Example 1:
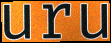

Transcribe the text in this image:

uru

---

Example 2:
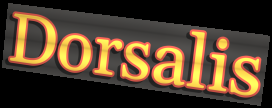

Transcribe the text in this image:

Dorsalis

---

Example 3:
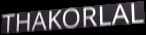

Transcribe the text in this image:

THAKORLAL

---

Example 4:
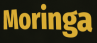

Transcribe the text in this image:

Moringa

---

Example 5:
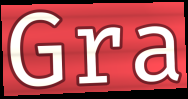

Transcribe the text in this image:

Gra